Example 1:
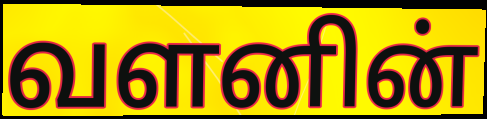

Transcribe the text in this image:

வளனின்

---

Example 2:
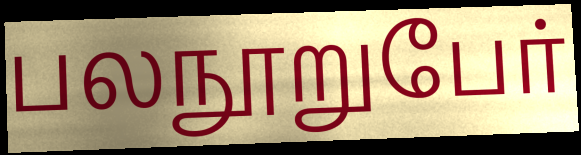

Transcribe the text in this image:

பலநூறுபேர்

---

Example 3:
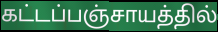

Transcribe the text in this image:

கட்டப்பஞ்சாயத்தில்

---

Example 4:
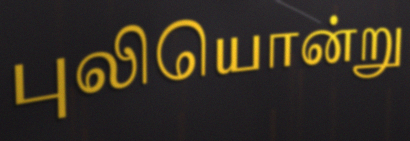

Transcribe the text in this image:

புலியொன்று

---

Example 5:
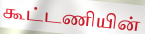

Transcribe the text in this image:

கூட்டணியின்